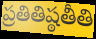
ప్రతితిష్ఠతీతి